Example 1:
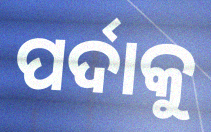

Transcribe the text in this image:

ପର୍ଦାକୁ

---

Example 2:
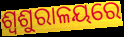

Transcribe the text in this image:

ଶ୍ୱଶୁରାଳୟରେ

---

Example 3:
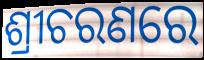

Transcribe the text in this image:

ଶ୍ରୀଚରଣରେ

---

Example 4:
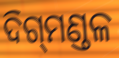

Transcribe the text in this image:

ଦିଗ୍‌ମଣ୍ଡଳ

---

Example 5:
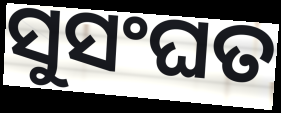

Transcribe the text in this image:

ସୁସଂଘତ